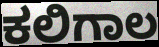
ಕಲಿಗಾಲ